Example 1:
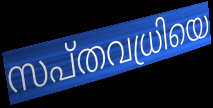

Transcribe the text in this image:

സപ്തവധ്രിയെ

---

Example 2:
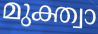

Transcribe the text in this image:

മുക്ത്വാ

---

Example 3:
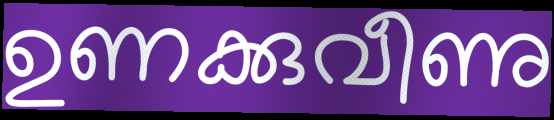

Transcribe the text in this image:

ഉണക്കുവീണു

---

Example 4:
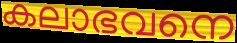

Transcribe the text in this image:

കലാഭവനെ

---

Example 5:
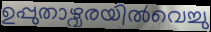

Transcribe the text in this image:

ഉപ്പുതാഴ്വരയിൽവെച്ചു